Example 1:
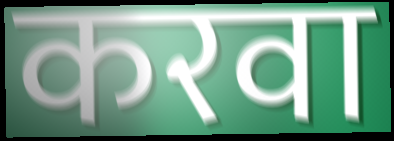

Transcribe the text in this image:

करवा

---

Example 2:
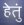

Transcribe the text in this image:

हेतुं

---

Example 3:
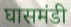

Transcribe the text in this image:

घासमंडी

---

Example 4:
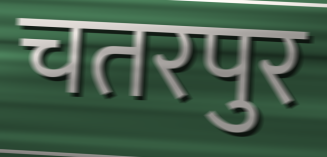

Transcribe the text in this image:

चतरपुर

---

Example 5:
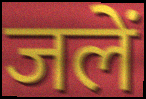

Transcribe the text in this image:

जलें